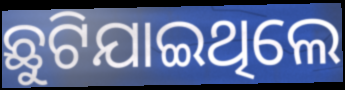
ଛୁଟିଯାଇଥିଲେ